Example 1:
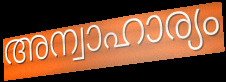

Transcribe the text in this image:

അന്വാഹാര്യം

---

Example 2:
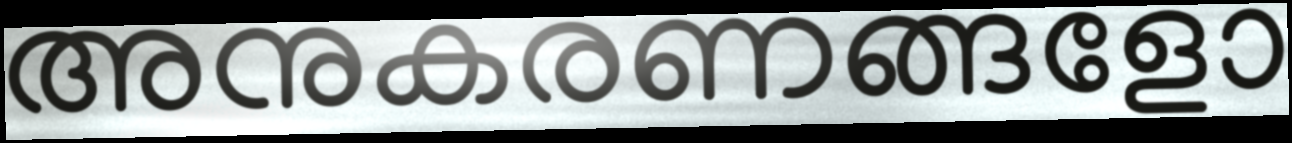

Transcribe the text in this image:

അനുകരണങ്ങളോ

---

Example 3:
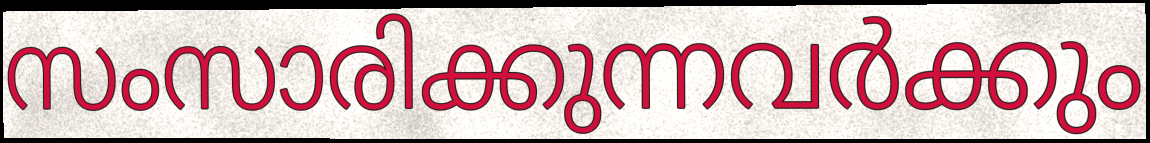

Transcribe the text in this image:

സംസാരിക്കുന്നവർക്കും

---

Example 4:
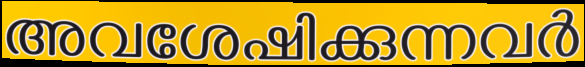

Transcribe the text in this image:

അവശേഷിക്കുന്നവർ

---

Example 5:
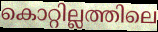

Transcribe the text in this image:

കൊറ്റില്ലത്തിലെ